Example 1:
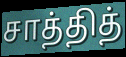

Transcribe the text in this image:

சாத்தித்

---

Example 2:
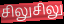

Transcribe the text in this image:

சிலுசிலு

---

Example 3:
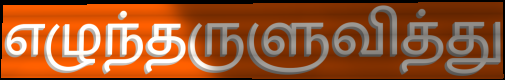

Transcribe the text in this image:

எழுந்தருளுவித்து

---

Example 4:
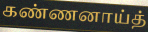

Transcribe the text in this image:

கண்ணனாய்த்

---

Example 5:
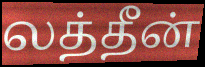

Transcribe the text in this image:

லத்தீன்